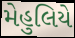
મેહુલિયે